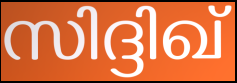
സിദ്ദിഖ്